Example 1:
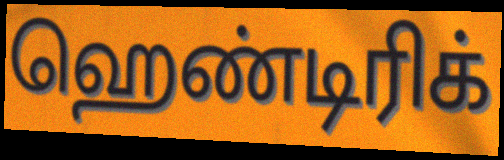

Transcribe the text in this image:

ஹெண்டிரிக்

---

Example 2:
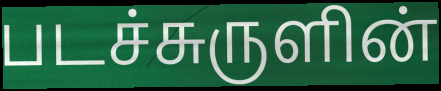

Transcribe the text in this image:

படச்சுருளின்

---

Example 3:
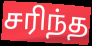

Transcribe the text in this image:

சரிந்த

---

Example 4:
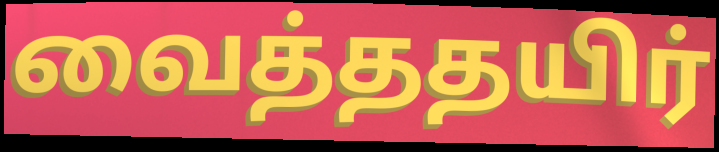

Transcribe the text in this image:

வைத்ததயிர்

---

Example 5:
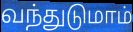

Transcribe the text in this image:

வந்துடுமாம்